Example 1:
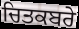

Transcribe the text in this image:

ਚਿਤਕਬਰੇ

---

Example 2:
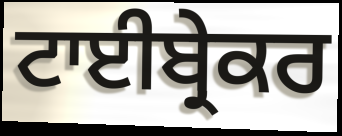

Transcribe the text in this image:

ਟਾਈਬ੍ਰੇਕਰ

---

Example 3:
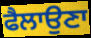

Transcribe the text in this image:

ਫੈਲਾਉਣਾ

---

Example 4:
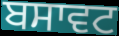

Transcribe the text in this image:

ਬਸਾਵਟ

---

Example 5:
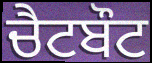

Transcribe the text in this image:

ਚੈਟਬੌਟ